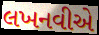
લખનવીએ